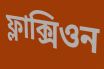
ফ্লাক্সিওন